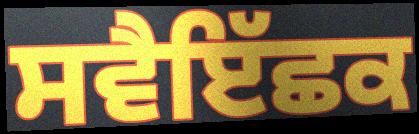
ਸਵੈਇੱਛਕ